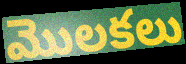
మొలకలు